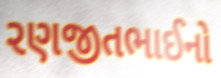
રણજીતભાઈનો